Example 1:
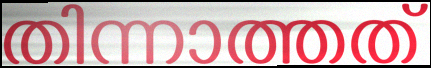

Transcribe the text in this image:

തിന്നാത്തത്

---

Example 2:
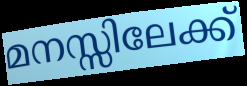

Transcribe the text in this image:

മനസ്സിലേക്ക്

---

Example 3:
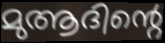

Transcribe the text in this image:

മുആദിന്റെ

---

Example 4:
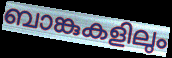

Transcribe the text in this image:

ബാങ്കുകളിലും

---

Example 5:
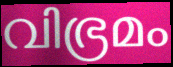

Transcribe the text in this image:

വിഭ്രമം